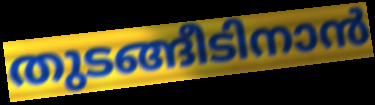
തുടങ്ങീടിനാൻ